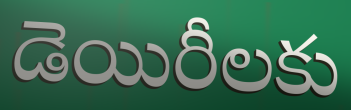
డెయిరీలకు